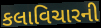
કલાવિચારની